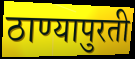
ठाण्यापुरती